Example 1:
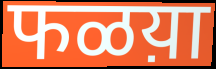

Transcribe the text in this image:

फळय़ा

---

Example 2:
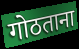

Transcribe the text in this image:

गोठताना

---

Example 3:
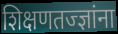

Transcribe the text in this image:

शिक्षणतज्ज्ञांना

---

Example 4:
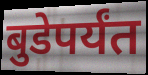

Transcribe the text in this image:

बुडेपर्यंत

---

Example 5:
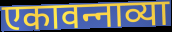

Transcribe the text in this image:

एकावन्नाव्या